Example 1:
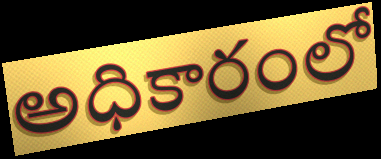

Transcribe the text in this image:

అధికారంలో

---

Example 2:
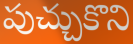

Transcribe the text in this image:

పుచ్చుకొని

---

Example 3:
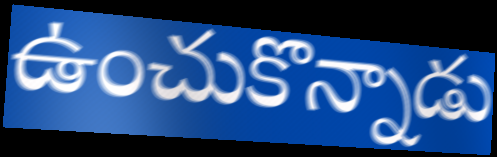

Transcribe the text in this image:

ఉంచుకొన్నాడు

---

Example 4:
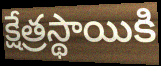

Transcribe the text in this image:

క్షేత్రస్థాయికి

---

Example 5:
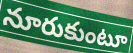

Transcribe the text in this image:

నూరుకుంటూ